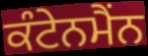
ਕੰਟੇਨਮੈਂਨ